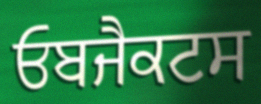
ਓਬਜੈਕਟਸ